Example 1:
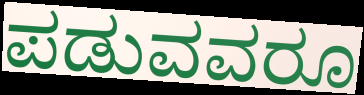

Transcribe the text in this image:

ಪಡುವವರೂ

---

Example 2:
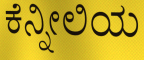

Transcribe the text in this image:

ಕೆನ್ನೀಲಿಯ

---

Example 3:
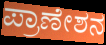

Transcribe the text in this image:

ಪ್ರಾಣೇಶನ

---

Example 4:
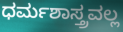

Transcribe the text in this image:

ಧರ್ಮಶಾಸ್ತ್ರವಲ್ಲ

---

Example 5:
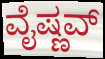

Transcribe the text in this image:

ವೈಷ್ಣವ್